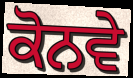
ਕੋਨਵੇ